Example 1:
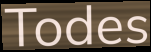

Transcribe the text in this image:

Todes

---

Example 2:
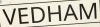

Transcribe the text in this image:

VEDHAM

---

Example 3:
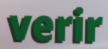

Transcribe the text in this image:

verir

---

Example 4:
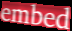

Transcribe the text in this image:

embed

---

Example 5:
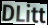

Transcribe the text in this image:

DLitt